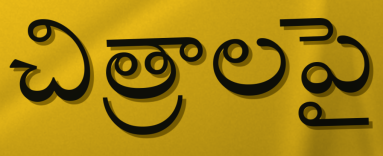
చిత్రాలపై